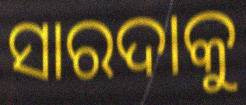
ସାରଦାକୁ